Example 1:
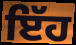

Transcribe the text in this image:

ਇੱਹ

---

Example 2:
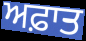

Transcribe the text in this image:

ਅਫ਼ਾਤ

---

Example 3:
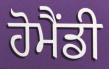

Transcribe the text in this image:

ਹੋਮੈਂਡੀ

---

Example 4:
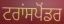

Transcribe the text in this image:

ਟਰਾਂਸਪੋਂਡਰ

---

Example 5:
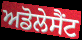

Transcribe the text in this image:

ਅਡੋਲੇਸੈਂਟ